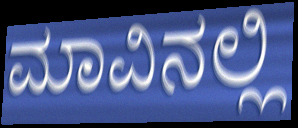
ಮಾವಿನಲ್ಲಿ